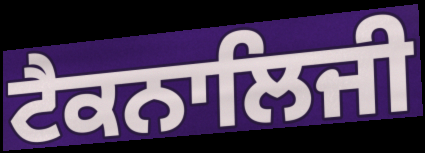
ਟੈਕਨਾਲਿਜੀ